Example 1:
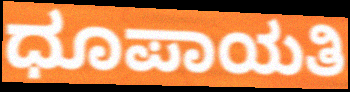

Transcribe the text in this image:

ಧೂಪಾಯತಿ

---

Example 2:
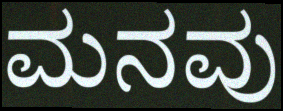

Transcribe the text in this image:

ಮನವು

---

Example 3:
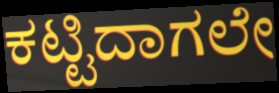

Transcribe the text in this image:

ಕಟ್ಟಿದಾಗಲೇ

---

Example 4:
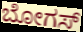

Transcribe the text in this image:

ಬೋಗಸ್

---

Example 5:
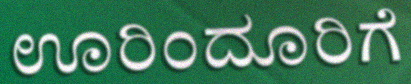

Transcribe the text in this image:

ಊರಿಂದೂರಿಗೆ